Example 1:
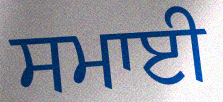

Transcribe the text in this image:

ਸਮਾਈ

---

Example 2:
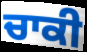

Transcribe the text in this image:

ਚਾਕੀ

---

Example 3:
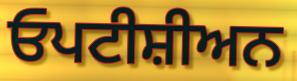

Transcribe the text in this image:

ਓਪਟੀਸ਼ੀਅਨ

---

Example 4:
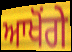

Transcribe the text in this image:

ਆਖੋਂਗੇ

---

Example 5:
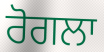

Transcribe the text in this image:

ਰੋਗਲਾ